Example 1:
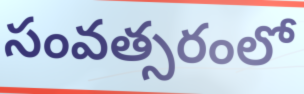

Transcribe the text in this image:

సంవత్సరంలో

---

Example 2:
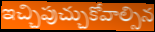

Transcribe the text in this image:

ఇచ్చిపుచ్చుకోవాల్సిన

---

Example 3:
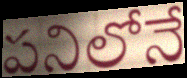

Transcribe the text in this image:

పనిలోనే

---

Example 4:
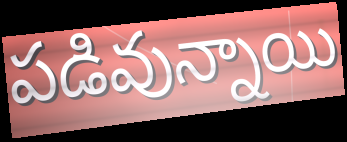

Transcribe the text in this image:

పడివున్నాయి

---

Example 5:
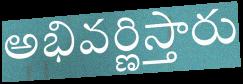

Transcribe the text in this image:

అభివర్ణిస్తారు